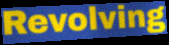
Revolving